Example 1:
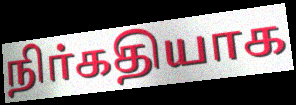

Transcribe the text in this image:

நிர்கதியாக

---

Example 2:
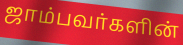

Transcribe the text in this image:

ஜாம்பவர்களின்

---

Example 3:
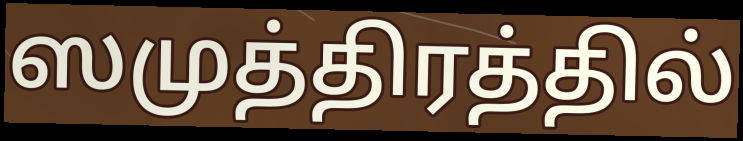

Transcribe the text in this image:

ஸமுத்திரத்தில்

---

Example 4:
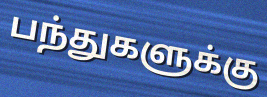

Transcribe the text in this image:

பந்துகளுக்கு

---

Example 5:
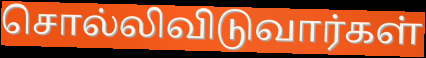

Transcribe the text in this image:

சொல்லிவிடுவார்கள்